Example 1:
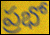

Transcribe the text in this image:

ప్రభో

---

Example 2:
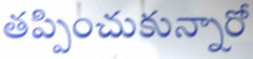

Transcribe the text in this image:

తప్పించుకున్నారో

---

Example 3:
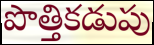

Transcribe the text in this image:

పొత్తికడుపు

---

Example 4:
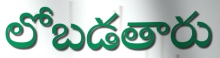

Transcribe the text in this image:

లోబడతారు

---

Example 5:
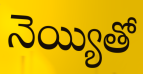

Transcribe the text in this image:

నెయ్యితో